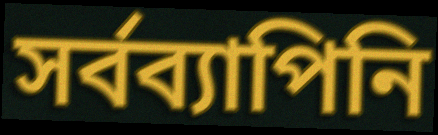
সর্বব্যাপিনি